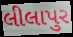
લીલાપુર